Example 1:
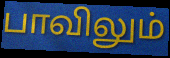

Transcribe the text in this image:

பாவிலும்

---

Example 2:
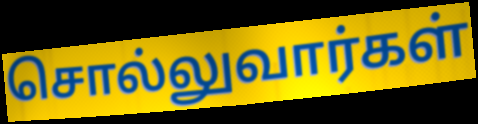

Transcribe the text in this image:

சொல்லுவார்கள்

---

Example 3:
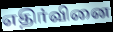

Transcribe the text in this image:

எதிர்வினை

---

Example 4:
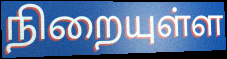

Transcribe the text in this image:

நிறையுள்ள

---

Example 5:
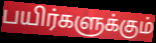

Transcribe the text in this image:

பயிர்களுக்கும்